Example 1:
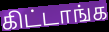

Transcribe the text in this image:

கிட்டாங்க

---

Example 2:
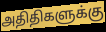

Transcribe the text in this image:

அதிதிகளுக்கு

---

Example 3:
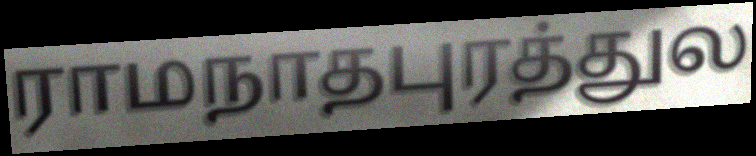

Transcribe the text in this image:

ராமநாதபுரத்துல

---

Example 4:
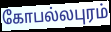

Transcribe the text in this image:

கோபல்லபுரம்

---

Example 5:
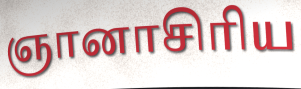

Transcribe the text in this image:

ஞானாசிரிய